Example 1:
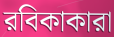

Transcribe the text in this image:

রবিকাকারা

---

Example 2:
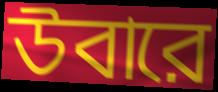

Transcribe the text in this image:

উবারে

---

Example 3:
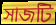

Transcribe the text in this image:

সাজটি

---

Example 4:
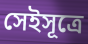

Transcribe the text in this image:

সেইসূত্রে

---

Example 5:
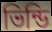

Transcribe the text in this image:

ভিন্ডি